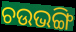
ଚଉଭଙ୍ଗି